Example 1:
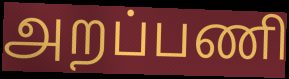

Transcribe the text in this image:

அறப்பணி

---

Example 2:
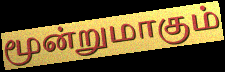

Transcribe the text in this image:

மூன்றுமாகும்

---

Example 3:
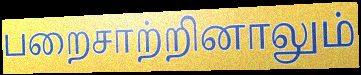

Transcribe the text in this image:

பறைசாற்றினாலும்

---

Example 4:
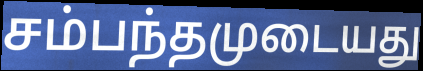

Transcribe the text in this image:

சம்பந்தமுடையது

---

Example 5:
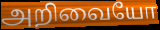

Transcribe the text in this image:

அறிவையோ